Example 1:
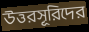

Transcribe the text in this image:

উত্তরসূরিদের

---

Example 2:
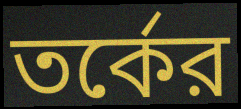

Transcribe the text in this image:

তর্কের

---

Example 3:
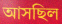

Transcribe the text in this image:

আসছিল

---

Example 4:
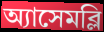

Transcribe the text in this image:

অ্যাসেমব্লি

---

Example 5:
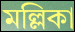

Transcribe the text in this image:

মল্লিকা